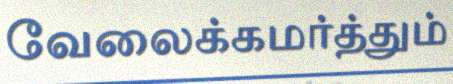
வேலைக்கமர்த்தும்